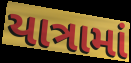
યાત્રામાં